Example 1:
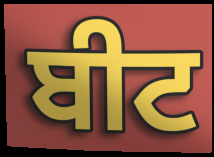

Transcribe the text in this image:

ਬੀਟ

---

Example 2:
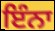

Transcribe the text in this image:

ਇੰਨਾ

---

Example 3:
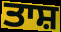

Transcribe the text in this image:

ਤਾਸ਼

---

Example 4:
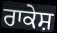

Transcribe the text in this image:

ਰਾਕੇਸ਼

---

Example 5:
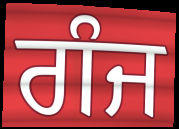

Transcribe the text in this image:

ਗੰਜ